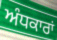
ਅੰਧਕਾਰਾਂ